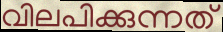
വിലപിക്കുന്നത്